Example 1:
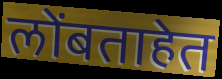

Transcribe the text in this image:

लोंबताहेत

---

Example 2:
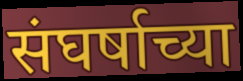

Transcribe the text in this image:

संघर्षाच्या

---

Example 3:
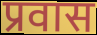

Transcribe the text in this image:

प्रवास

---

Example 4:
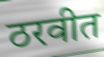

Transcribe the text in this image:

ठरवीत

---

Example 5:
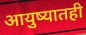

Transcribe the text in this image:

आयुष्यातही